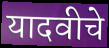
यादवीचे